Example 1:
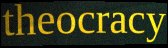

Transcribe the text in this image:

theocracy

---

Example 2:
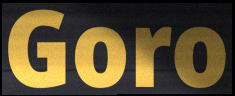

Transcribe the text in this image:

Goro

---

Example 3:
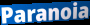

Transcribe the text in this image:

Paranoia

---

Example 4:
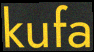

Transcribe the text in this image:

kufa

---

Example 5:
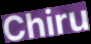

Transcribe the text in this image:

Chiru